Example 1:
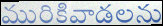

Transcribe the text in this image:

మురికివాడలను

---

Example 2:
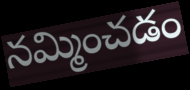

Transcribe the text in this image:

నమ్మించడం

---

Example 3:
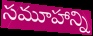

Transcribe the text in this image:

సమూహాన్ని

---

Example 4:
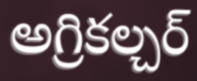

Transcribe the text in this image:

అగ్రికల్చర్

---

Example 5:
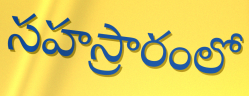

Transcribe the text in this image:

సహస్రారంలో